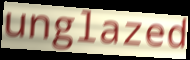
unglazed